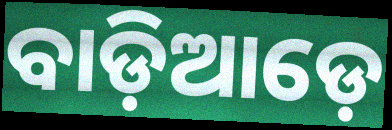
ବାଡ଼ିଆଡ଼େ